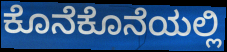
ಕೊನೆಕೊನೆಯಲ್ಲಿ